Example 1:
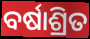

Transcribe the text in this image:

ବର୍ଷାଶ୍ରିତ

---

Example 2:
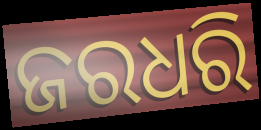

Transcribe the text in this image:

ଜରଧରି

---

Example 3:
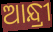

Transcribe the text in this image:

ଆନ୍ଧ୍ରୀ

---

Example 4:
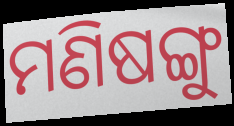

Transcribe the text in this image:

ମଣିଷଙ୍ଗୁ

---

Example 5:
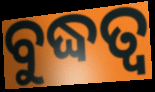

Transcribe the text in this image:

ବୁଦ୍ଧତ୍ଵ